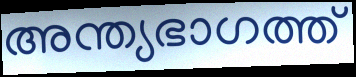
അന്ത്യഭാഗത്ത്